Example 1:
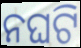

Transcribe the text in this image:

ନଘଟି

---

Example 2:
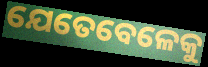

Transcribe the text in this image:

ଯେତେବେଳେକୁ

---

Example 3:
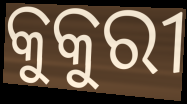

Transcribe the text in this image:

କୁକୁରୀ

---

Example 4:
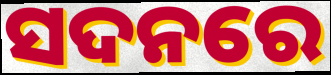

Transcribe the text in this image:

ସଦନରେ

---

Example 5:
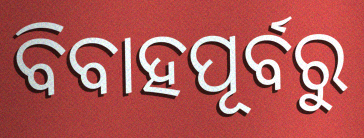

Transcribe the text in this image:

ବିବାହପୂର୍ବରୁ